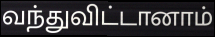
வந்துவிட்டானாம்